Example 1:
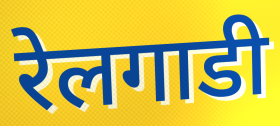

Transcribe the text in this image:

रेलगाडी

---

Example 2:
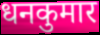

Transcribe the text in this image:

धनकुमार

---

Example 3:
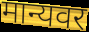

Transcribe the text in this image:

मान्यवर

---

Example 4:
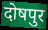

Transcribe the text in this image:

दोषपुर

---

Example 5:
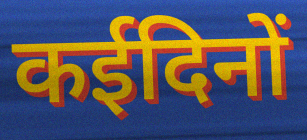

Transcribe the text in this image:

कईदिनों